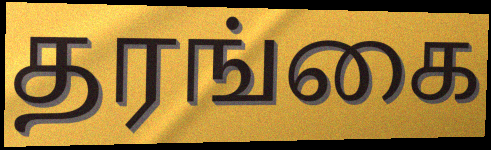
தரங்கை